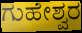
ಗುಹೇಶ್ವರ